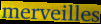
merveilles